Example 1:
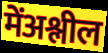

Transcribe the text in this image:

मेंअश्लील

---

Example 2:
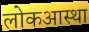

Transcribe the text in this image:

लोकआस्था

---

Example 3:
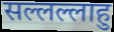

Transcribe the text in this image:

सल्लल्लाहु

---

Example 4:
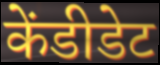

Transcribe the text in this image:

केंडीडेट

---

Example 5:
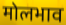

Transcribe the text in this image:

मोलभाव